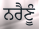
ਨਰੈਣੂੰ